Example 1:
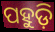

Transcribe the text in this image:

ପହୁଡ଼ି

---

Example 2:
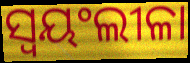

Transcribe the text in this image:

ସ୍ବୟଂଲୀଳା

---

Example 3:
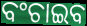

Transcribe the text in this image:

ବଂଚାଇବ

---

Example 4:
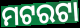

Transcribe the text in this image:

ମଟରଟା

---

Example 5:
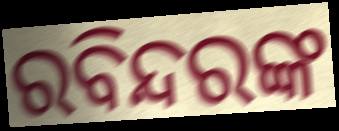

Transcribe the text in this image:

ରବିନ୍ଦରଙ୍କ